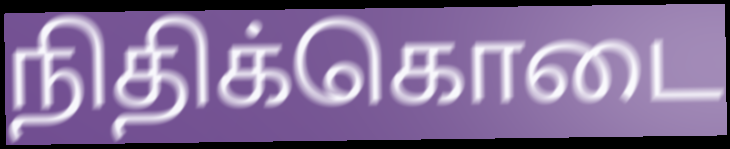
நிதிக்கொடை